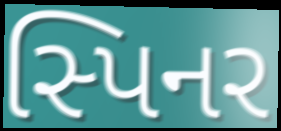
સ્પિનર